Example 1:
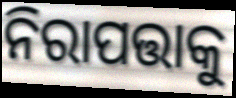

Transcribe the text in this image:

ନିରାପତ୍ତାକୁ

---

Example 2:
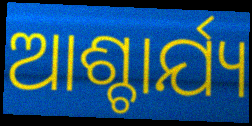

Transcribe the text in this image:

ଆଶ୍ଚାର୍ଯ୍ୟ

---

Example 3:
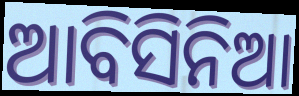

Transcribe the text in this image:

ଆବିସିନିଆ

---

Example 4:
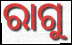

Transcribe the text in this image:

ରାଗୁ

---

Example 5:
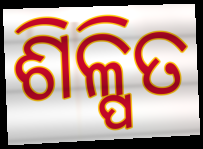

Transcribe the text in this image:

ଶିଳ୍ପିତ